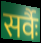
सर्वैः